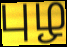
புழ